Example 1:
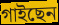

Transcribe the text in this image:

গাইছেন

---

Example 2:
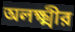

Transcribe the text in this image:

অলক্ষ্মীর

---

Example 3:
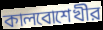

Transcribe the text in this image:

কালবোশেখীর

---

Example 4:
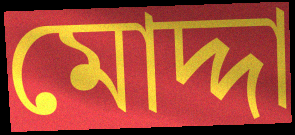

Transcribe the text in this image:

মোদ্দা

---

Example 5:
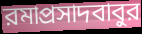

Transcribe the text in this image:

রমাপ্রসাদবাবুর